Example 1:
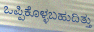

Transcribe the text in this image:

ಒಪ್ಪಿಕೊಳ್ಳಬಹುದಿತ್ತು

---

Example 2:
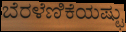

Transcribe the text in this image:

ಬೆರಳೆಣಿಕೆಯಷ್ಟು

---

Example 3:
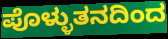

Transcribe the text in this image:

ಪೊಳ್ಳುತನದಿಂದ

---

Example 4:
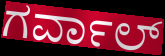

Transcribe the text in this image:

ಗರ್ವಾಲ್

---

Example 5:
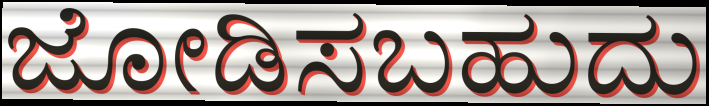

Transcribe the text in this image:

ಜೋಡಿಸಬಹುದು